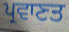
ਪ੍ਰਵਾਣਤ